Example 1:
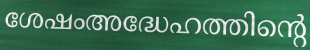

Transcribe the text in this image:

ശേഷംഅദ്ധേഹത്തിന്റെ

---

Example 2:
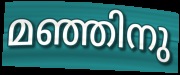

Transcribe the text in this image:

മഞ്ഞിനു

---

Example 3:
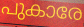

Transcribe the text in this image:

പുകാരേ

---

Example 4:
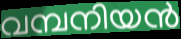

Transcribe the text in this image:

വമ്പനിയൻ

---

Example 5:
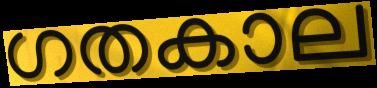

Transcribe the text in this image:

ഗതകാല